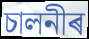
চালনীৰ